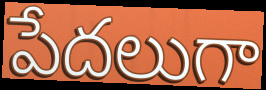
పేదలుగా